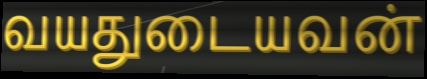
வயதுடையவன்